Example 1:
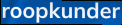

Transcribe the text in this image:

roopkunder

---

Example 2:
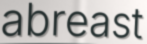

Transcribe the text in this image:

abreast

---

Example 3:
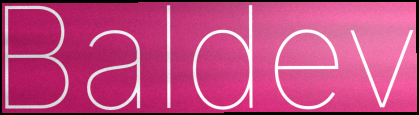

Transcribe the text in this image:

Baldev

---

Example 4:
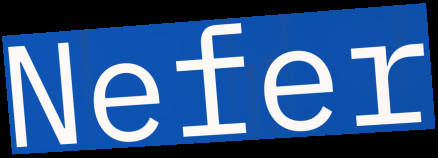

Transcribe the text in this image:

Nefer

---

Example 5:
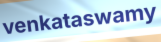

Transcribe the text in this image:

venkataswamy